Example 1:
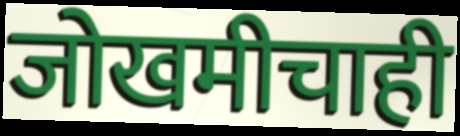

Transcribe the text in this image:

जोखमीचाही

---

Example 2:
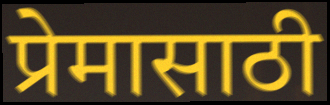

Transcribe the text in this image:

प्रेमासाठी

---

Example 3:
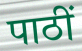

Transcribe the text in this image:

पाठीं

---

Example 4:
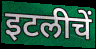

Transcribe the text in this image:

इटलीचें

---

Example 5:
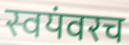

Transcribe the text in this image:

स्वयंवरच